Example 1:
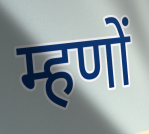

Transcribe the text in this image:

म्हणों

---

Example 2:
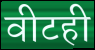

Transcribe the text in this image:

वीटही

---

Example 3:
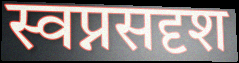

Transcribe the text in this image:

स्वप्नसदृश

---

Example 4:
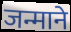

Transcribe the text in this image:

जन्माने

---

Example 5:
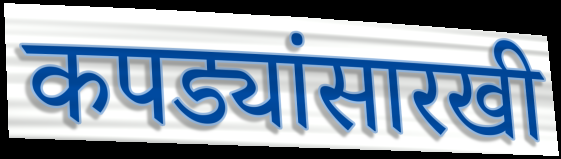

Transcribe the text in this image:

कपड्यांसारखी